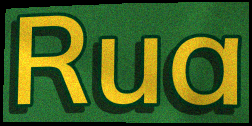
Rua